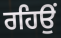
ਰਹਿਉਂ